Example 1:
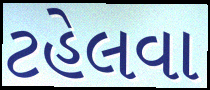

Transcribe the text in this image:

ટહેલવા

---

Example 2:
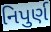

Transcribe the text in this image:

નિપુર્ણ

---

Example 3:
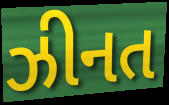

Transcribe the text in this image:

ઝીનત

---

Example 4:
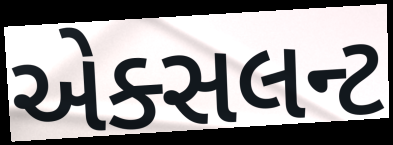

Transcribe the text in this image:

એક્સલન્ટ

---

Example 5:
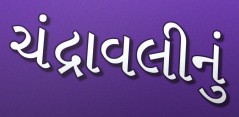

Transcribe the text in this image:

ચંદ્રાવલીનું